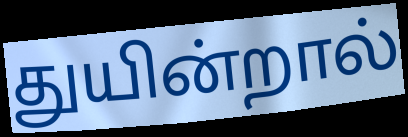
துயின்றால்